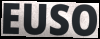
EUSO